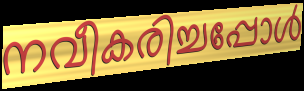
നവീകരിച്ചപ്പോൾ